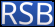
RSB